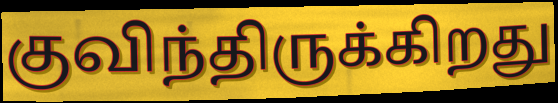
குவிந்திருக்கிறது